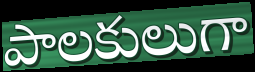
పాలకులుగా